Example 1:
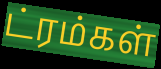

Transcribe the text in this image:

ட்ரம்கள்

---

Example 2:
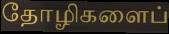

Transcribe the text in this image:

தோழிகளைப்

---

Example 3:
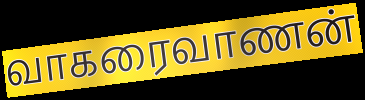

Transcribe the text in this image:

வாகரைவாணன்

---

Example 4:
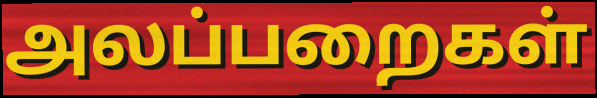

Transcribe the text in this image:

அலப்பறைகள்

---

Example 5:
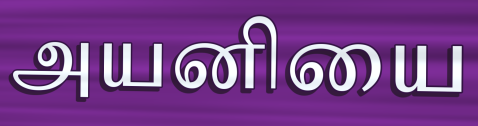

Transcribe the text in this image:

அயனியை